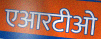
एआरटीओ